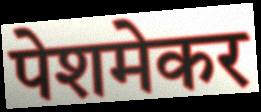
पेशमेकर